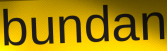
bundan